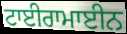
ਟਾਈਰਾਮਾਈਨ